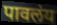
पावलंय